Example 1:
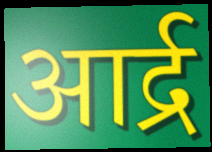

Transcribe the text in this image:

आर्द्र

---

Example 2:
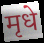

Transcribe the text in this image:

मृधे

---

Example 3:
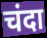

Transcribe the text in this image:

चंदा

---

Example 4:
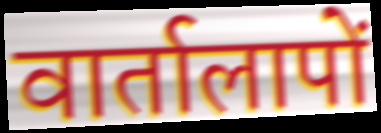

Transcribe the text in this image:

वार्तालापों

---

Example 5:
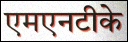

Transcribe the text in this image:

एमएनटीके